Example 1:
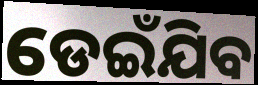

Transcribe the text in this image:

ଡେଇଁଯିବ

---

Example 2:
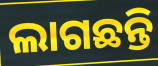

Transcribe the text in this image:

ଲାଗଛନ୍ତି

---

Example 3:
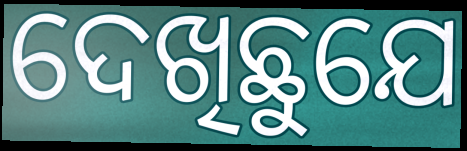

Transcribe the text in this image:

ଦେଖିଛୁଯେ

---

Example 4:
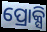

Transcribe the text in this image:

ପ୍ରୋକ୍ସି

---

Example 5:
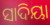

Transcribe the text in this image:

ସାଦିୟା